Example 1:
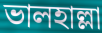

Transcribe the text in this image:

ভালহাল্লা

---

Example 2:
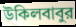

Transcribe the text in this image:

উকিলবাবুর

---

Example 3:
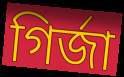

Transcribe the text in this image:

গির্জা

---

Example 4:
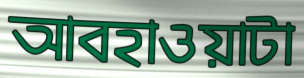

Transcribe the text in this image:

আবহাওয়াটা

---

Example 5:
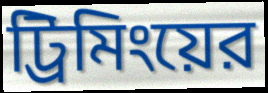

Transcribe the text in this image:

ট্রিমিংয়ের